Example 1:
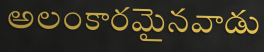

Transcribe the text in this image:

అలంకారమైనవాడు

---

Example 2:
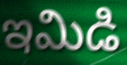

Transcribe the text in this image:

ఇమిడి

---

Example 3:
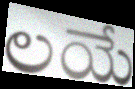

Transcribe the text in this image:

లయే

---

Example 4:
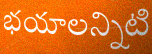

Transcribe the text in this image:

భయాలన్నిటి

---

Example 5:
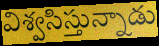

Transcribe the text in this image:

విశ్వసిస్తున్నాడు